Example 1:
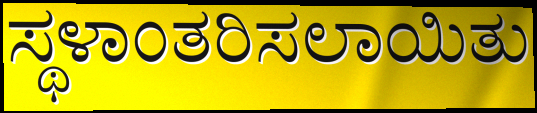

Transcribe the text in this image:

ಸ್ಥಳಾಂತರಿಸಲಾಯಿತು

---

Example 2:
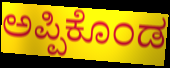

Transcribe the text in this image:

ಅಪ್ಪಿಕೊಂಡ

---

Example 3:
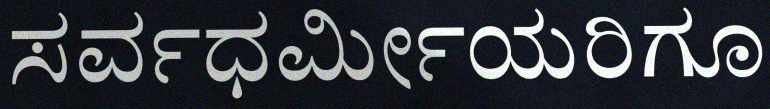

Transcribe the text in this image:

ಸರ್ವಧರ್ಮೀಯರಿಗೂ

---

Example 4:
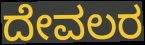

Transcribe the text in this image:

ದೇವಲರ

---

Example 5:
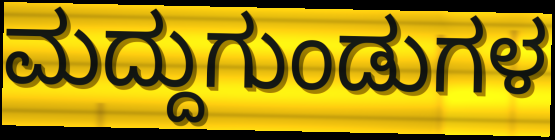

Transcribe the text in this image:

ಮದ್ದುಗುಂಡುಗಳ